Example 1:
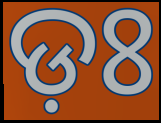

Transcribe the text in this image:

ଡ଼ଃ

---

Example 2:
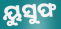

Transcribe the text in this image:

ୟୁସୁଫ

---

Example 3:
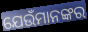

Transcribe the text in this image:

ଯେଉଁମାନଙ୍କର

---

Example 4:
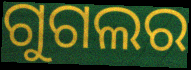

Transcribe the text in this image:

ଗୁଗଲର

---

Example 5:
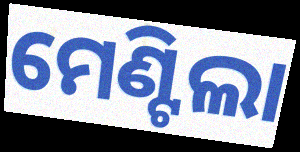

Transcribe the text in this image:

ମେଣ୍ଟିଲା